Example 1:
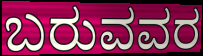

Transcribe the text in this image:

ಬರುವವರ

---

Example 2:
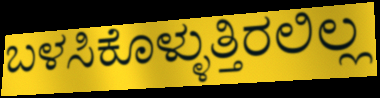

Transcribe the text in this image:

ಬಳಸಿಕೊಳ್ಳುತ್ತಿರಲಿಲ್ಲ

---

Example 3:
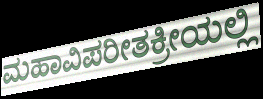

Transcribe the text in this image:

ಮಹಾವಿಪರೀತಕ್ರೀಯಲ್ಲಿ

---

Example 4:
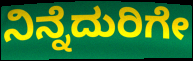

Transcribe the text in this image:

ನಿನ್ನೆದುರಿಗೇ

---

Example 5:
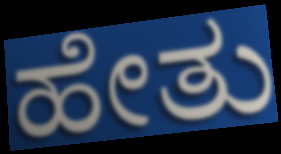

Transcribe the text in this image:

ಹೇತು